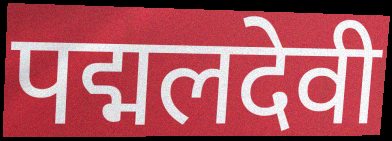
पद्मलदेवी